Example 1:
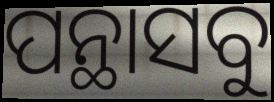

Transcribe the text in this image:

ପନ୍ଥାସବୁ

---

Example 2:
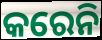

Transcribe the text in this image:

କରେନି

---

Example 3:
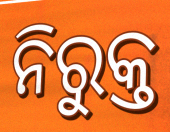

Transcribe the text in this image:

ନିରୁକ୍ତ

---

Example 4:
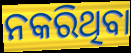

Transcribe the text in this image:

ନକରିଥିବା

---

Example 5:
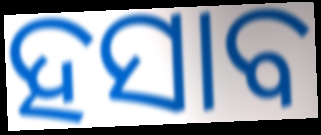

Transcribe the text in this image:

ହସାବ